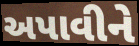
અપાવીને